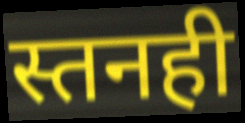
स्तनही